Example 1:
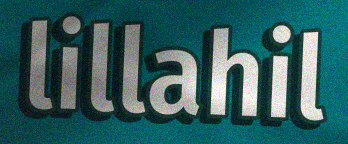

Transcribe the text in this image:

lillahil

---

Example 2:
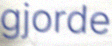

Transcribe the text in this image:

gjorde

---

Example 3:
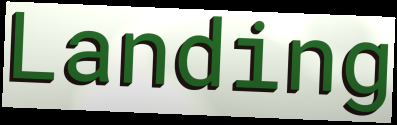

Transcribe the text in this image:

Landing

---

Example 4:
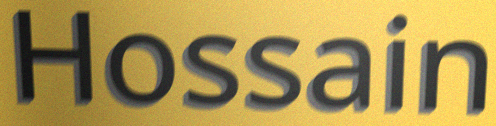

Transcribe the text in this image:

Hossain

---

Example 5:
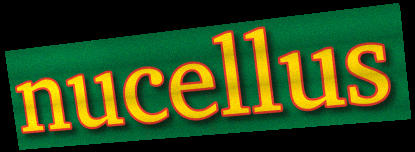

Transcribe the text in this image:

nucellus